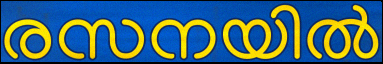
രസനയിൽ